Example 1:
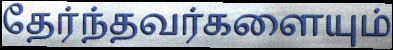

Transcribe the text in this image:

தேர்ந்தவர்களையும்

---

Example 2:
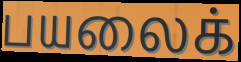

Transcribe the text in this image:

பயலைக்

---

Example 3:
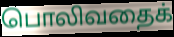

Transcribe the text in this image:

பொலிவதைக்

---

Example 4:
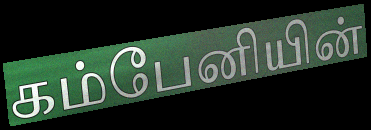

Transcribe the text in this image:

கம்பேனியின்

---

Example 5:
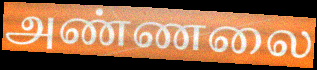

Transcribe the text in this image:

அண்ணலை